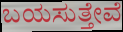
ಬಯಸುತ್ತೇವೆ